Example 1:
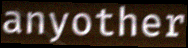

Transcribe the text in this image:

anyother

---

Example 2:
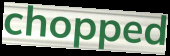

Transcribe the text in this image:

chopped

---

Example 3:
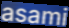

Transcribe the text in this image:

asami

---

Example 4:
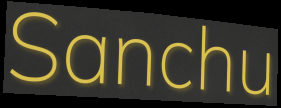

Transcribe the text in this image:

Sanchu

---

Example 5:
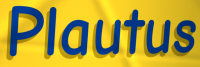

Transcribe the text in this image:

Plautus